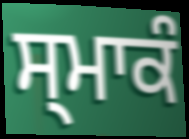
ਸ੍ਮਾਕੰ